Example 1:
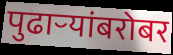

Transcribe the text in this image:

पुढाऱ्यांबरोबर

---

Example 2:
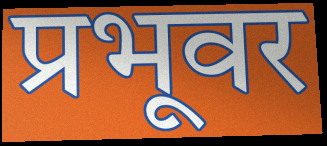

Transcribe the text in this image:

प्रभूवर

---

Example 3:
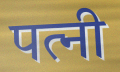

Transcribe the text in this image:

पत्‍नी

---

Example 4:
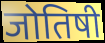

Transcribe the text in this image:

जोतिषी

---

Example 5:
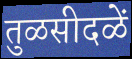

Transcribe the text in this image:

तुळसीदळें